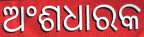
ଅଂଶଧାରକ